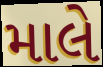
માલે